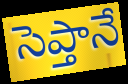
సెప్తానే